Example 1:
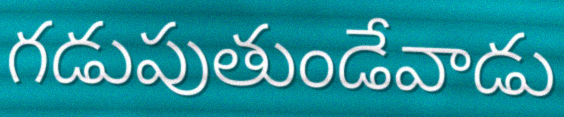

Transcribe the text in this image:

గడుపుతుండేవాడు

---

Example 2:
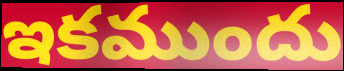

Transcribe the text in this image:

ఇకముందు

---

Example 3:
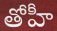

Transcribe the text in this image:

తోహీ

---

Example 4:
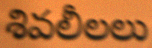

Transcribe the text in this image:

శివలీలలు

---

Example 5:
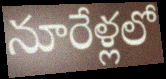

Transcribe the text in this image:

నూరేళ్లలో